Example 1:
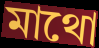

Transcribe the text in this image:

মাথো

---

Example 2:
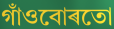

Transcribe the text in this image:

গাঁওবোৰতো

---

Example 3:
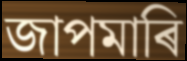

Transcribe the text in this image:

জাপমাৰি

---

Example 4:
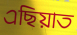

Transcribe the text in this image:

এছিয়াত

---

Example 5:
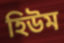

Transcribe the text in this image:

হিউম